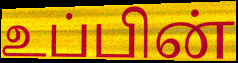
உப்பின்